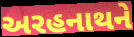
અરહનાથને